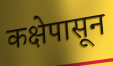
कक्षेपासून